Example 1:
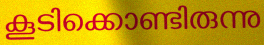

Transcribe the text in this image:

കൂടിക്കൊണ്ടിരുന്നു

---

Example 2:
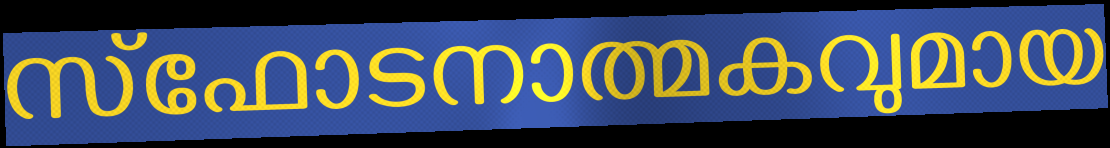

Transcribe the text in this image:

സ്ഫോടനാത്മകവുമായ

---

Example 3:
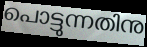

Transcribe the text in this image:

പൊട്ടുന്നതിനു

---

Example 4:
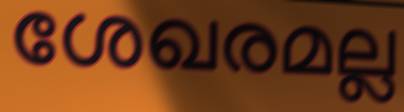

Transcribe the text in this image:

ശേഖരമല്ല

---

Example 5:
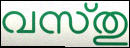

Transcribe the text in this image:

വസ്തു